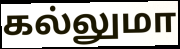
கல்லுமா